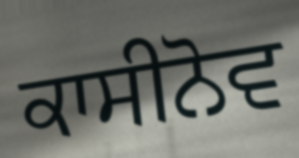
ਕਾਸੀਨੋਵ